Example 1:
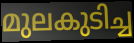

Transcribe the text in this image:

മുലകുടിച്ച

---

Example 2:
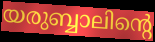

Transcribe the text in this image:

യരുബ്ബാലിന്റെ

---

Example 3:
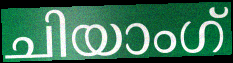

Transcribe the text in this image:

ചിയാംഗ്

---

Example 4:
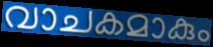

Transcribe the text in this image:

വാചകമാകും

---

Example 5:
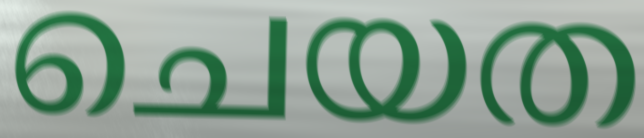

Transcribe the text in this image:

ചെയത